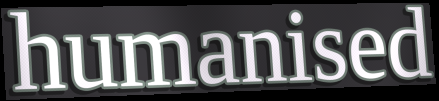
humanised